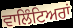
ਵਾਲਿੰਟਿਅਰਾਂ